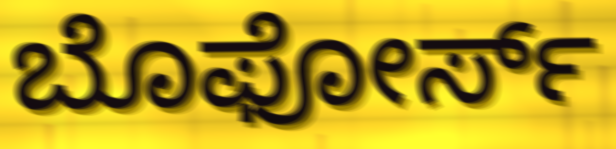
ಬೊಫೋರ್ಸ್